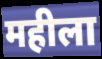
महीला